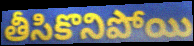
తీసికొనిపోయి